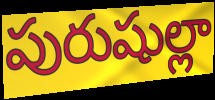
పురుషుల్లా